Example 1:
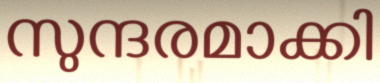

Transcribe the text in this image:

സുന്ദരമാക്കി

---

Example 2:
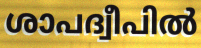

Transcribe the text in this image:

ശാപദ്വീപിൽ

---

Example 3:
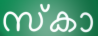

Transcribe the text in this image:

സ്കാ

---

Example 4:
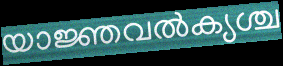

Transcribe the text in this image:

യാജ്ഞവൽക്യശ്ച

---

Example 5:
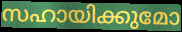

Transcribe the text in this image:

സഹായിക്കുമോ